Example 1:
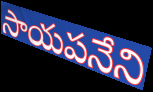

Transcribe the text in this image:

సాయపనేని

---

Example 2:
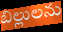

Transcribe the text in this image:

బిల్లులను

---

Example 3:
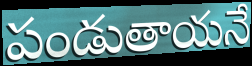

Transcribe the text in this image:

పండుతాయనే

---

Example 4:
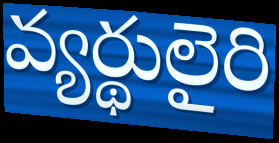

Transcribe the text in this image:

వ్యర్థులైరి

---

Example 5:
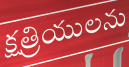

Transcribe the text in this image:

క్షత్రియులను